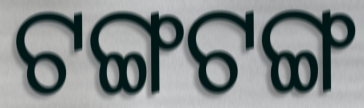
ଟଙ୍ଗଟଙ୍ଗ